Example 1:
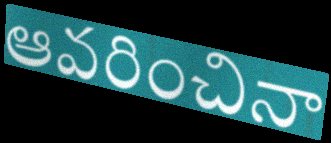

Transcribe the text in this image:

ఆవరించినా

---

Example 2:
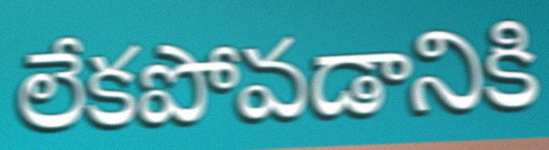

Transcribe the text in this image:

లేకపోవడానికి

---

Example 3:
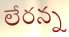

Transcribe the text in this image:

లేరన్న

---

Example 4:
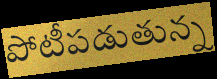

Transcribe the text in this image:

పోటీపడుతున్న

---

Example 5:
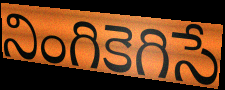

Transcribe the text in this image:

నింగికెగిసే